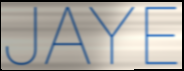
JAYE